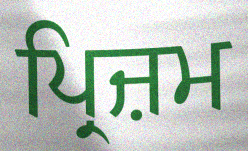
ਪ੍ਰਿਜ਼ਮ